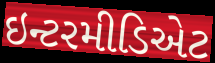
ઇન્ટરમીડિએટ